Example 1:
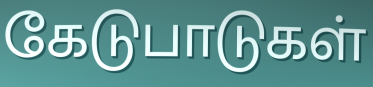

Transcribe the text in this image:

கேடுபாடுகள்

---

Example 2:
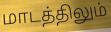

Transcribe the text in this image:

மாடத்திலும்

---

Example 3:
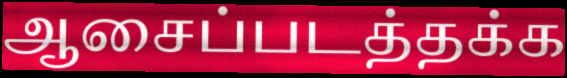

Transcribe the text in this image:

ஆசைப்படத்தக்க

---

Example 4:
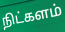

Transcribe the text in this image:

நிட்களம்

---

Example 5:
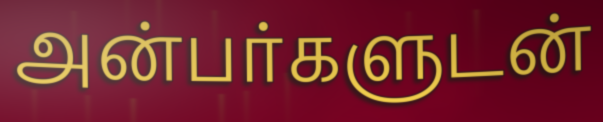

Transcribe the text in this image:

அன்பர்களுடன்